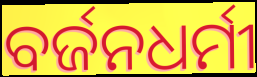
ବର୍ଜନଧର୍ମୀ